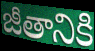
జీతానికి